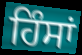
ਹਿੰਸਾਂ